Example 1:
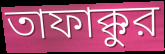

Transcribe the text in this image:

তাফাক্কুর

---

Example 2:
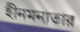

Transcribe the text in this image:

হীনমন্যতার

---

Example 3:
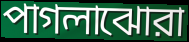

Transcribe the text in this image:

পাগলাঝোরা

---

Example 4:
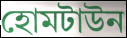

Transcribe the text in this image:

হোমটাউন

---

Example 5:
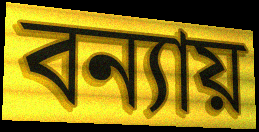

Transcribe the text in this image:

বন্যায়